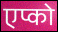
एप्को